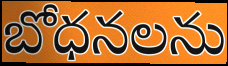
బోధనలను